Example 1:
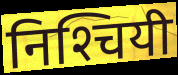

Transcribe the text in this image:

निश्चियी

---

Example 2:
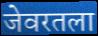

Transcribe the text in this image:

जेवरतला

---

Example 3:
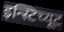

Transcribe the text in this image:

इन्स्टिच्यूट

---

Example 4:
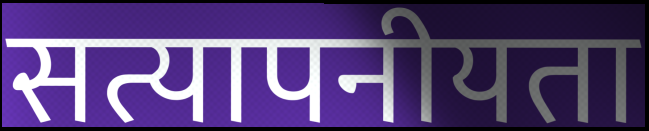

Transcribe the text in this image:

सत्यापनीयता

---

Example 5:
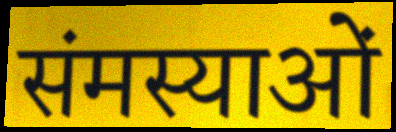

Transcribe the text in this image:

संमस्याओं